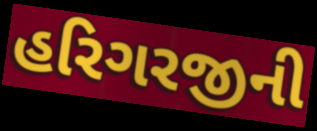
હરિગરજીની